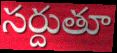
సర్దుతూ